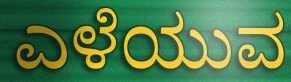
ಎಳೆಯುವ